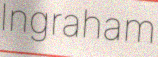
Ingraham